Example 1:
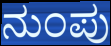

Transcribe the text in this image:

ನುಂಪು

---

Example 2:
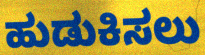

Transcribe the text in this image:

ಹುಡುಕಿಸಲು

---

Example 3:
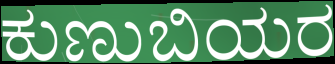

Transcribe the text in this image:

ಕುಣುಬಿಯರ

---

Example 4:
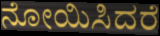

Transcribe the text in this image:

ನೋಯಿಸಿದರೆ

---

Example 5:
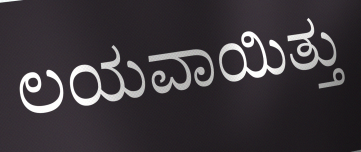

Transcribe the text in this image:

ಲಯವಾಯಿತ್ತು